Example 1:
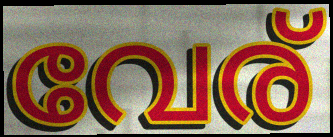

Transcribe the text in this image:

വേര്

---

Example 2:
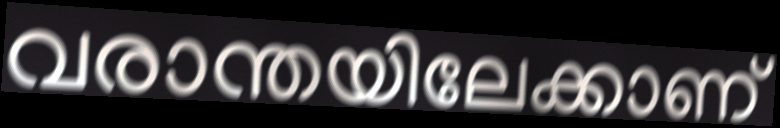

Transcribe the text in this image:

വരാന്തയിലേക്കാണ്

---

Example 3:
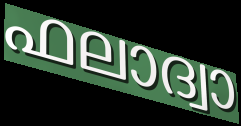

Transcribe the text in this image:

ഫലാദ്വാ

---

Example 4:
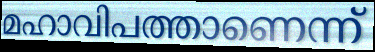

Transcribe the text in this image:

മഹാവിപത്താണെന്ന്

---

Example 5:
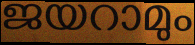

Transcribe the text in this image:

ജയറാമും